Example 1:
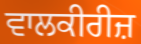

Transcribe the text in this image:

ਵਾਲਕੀਰੀਜ਼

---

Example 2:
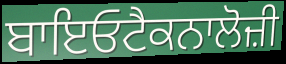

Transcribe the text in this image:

ਬਾਇਓਟੈਕਨਾਲੋਜ਼ੀ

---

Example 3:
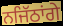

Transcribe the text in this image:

ਨਜਿੱਠਾਂਗੇ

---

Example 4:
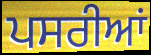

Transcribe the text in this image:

ਪਸਰੀਆਂ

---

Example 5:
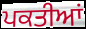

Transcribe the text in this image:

ਪਕਤੀਆਂ